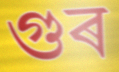
গুৰ